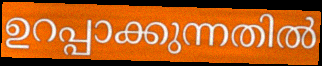
ഉറപ്പാക്കുന്നതിൽ